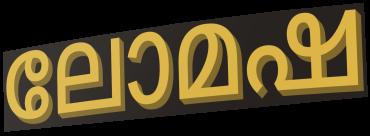
ലോമഷ